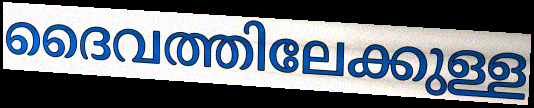
ദൈവത്തിലേക്കുള്ള